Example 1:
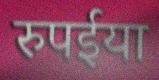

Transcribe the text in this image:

रुपईया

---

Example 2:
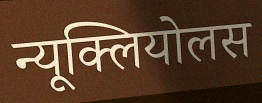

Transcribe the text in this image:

न्यूक्लियोलस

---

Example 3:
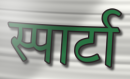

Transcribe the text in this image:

स्पार्टा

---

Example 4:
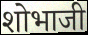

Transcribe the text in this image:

शोभाजी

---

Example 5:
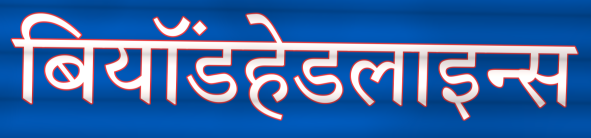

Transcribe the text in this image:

बियॉंडहेडलाइन्स